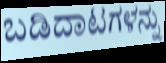
ಬಡಿದಾಟಗಳನ್ನು